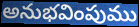
అనుభవింపుము